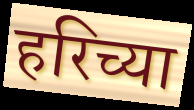
हरिच्या